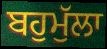
ਬਹੁਮੁੱਲਾ